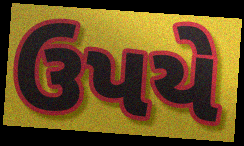
ઉપયે